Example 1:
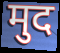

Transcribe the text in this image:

मुद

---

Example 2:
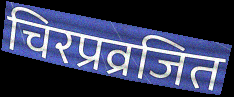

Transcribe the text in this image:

चिरप्रव्रजित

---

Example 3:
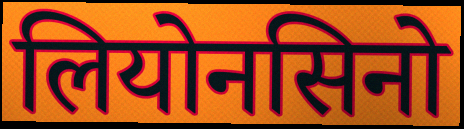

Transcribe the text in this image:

लियोनसिनो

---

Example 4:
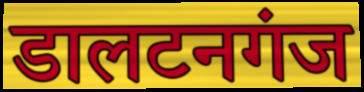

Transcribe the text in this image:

डालटनगंज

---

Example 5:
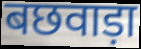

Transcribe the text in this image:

बछवाड़ा